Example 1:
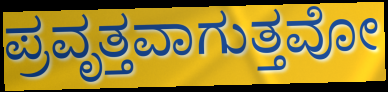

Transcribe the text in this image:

ಪ್ರವೃತ್ತವಾಗುತ್ತವೋ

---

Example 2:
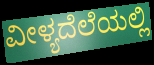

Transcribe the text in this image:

ವೀಳ್ಯದೆಲೆಯಲ್ಲಿ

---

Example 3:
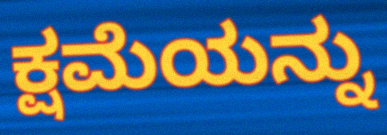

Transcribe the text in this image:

ಕ್ಷಮೆಯನ್ನು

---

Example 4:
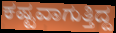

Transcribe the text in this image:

ಕಷ್ಟವಾಗುತ್ತಿದ್ದ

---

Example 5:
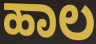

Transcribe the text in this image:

ಹಾಲ